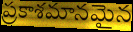
ప్రకాశమానమైన